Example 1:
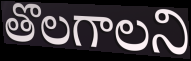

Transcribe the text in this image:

తొలగాలని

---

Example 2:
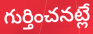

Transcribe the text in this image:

గుర్తించనట్లే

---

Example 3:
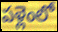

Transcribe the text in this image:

పళ్లెంలో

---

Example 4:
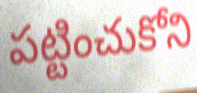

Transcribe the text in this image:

పట్టించుకోని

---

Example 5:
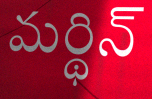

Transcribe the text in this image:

మర్థిన్